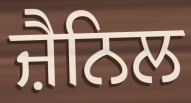
ਜ਼ੈਨਿਲ